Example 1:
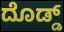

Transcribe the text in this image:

ದೊಡ್ಡ್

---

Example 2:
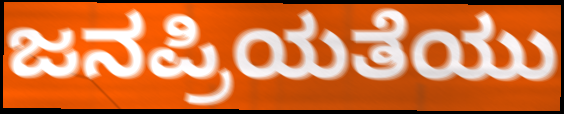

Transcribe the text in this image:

ಜನಪ್ರಿಯತೆಯು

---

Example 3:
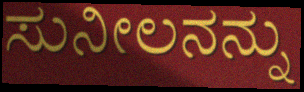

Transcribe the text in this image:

ಸುನೀಲನನ್ನು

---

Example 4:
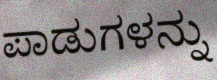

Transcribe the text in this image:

ಪಾಡುಗಳನ್ನು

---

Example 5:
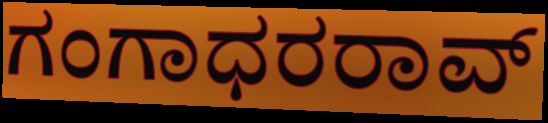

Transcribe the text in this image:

ಗಂಗಾಧರರಾವ್